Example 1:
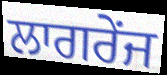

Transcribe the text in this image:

ਲਾਗਰੇਂਜ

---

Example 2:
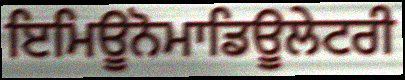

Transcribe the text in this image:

ਇਮਿਊਨੋਮਾਡਿਊਲੇਟਰੀ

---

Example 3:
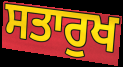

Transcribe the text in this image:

ਸਤਾਰੁਖ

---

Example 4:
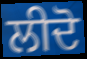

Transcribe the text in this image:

ਲੀਦੋ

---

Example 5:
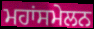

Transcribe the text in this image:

ਮਹਾਂਸਮੇਲਨ